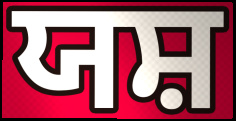
ਯਸ਼